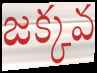
జక్కవ